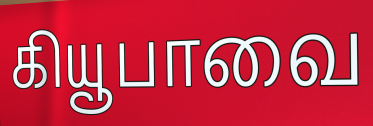
கியூபாவை